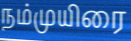
நம்முயிரை